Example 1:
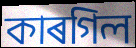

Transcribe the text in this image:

কাৰগিল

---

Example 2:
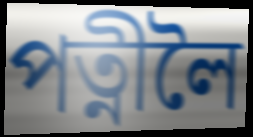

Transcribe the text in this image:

পত্নীলৈ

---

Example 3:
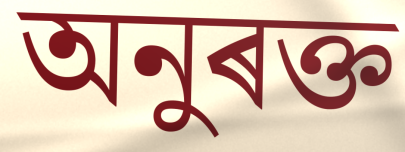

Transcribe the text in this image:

অনুৰক্ত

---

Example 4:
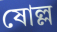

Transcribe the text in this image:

ষোল্ল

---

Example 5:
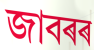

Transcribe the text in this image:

জাবৰৰ